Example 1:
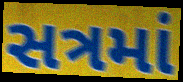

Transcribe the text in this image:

સત્રમાં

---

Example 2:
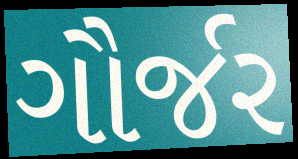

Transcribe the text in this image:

ગૌર્જર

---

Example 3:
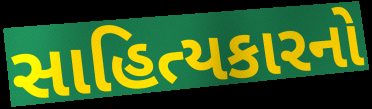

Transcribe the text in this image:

સાહિત્યકારનો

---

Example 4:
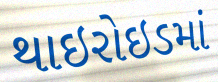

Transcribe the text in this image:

થાઇરોઇડમાં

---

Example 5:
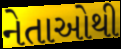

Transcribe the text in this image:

નેતાઓથી